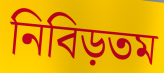
নিবিড়তম